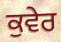
ਕੁਵੇਰ